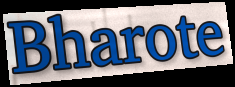
Bharote